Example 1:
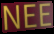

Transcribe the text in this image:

NEE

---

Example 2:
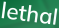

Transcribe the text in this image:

lethal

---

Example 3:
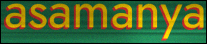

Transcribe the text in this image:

asamanya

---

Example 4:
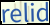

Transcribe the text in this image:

relid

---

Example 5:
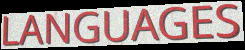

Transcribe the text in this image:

LANGUAGES